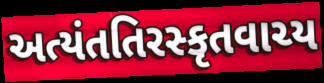
અત્યંતતિરસ્કૃતવાચ્ય